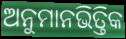
ଅନୁମାନଭିତ୍ତିକ